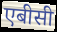
एबीसी